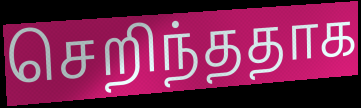
செறிந்ததாக